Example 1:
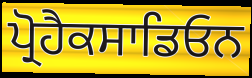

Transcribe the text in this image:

ਪ੍ਰੋਹੈਕਸਾਡਿਓਨ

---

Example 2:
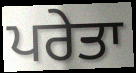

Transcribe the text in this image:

ਪਰੇਤਾ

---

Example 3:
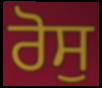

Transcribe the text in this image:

ਰੋਸੁ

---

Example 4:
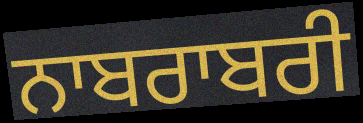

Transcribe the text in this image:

ਨਾਬਰਾਬਰੀ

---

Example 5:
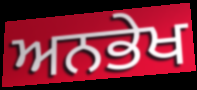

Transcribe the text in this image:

ਅਨਭੇਖ